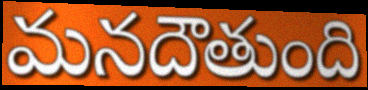
మనదౌతుంది